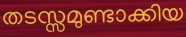
തടസ്സമുണ്ടാക്കിയ